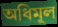
অধিমূল